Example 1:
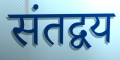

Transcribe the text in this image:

संतद्वय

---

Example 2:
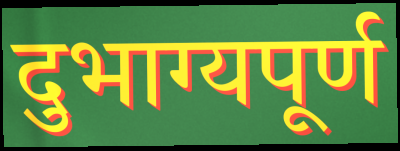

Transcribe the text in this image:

दुभाग्यपूर्ण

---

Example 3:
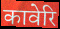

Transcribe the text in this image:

कावेरि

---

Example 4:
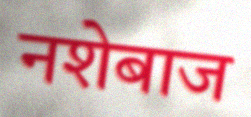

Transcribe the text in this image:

नशेबाज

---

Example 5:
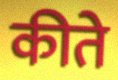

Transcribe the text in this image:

कीते